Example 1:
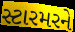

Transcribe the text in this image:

સ્ટારમરને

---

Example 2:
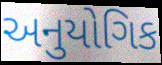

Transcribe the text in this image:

અનુયોગિક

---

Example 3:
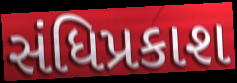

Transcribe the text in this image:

સંધિપ્રકાશ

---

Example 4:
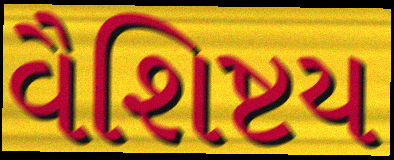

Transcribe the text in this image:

વૈશિષ્ટય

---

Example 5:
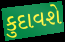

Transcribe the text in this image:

કુદાવશે